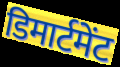
डिमार्टमेंट